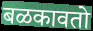
बळकावतो